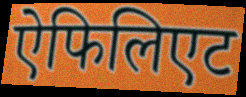
ऐफिलिएट